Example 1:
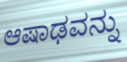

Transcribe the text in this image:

ಆಷಾಢವನ್ನು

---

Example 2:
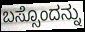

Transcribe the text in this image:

ಬಸ್ಸೊಂದನ್ನು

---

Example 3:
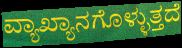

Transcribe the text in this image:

ವ್ಯಾಖ್ಯಾನಗೊಳ್ಳುತ್ತದೆ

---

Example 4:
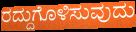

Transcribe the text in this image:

ರದ್ದುಗೊಳಿಸುವುದು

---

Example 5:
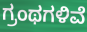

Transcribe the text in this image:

ಗ್ರಂಥಗಳಿವೆ